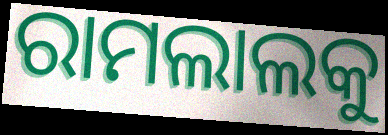
ରାମଲାଲକୁ